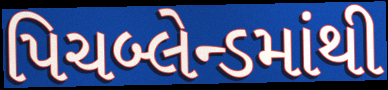
પિચબ્લેન્ડમાંથી